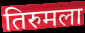
तिरुमला